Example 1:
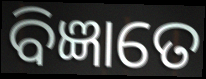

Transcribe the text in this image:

ବିଜ୍ଞାତେ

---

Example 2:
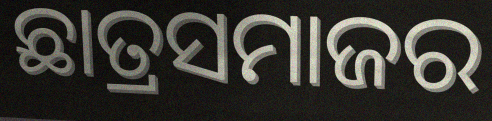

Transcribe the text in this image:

ଛାତ୍ରସମାଜର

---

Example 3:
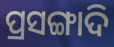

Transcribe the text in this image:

ପ୍ରସଙ୍ଗାଦି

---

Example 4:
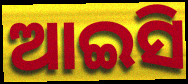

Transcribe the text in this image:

ଆଇସି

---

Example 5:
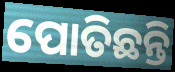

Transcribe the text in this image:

ପୋତିଛନ୍ତି